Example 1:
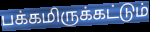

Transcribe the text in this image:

பக்கமிருக்கட்டும்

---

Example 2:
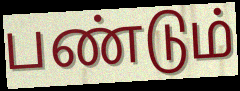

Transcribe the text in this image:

பண்டும்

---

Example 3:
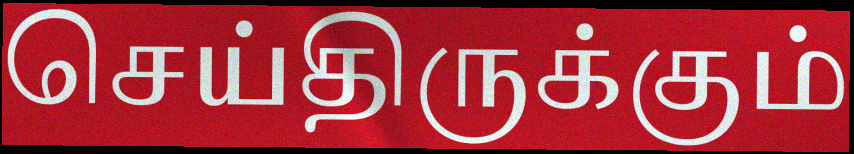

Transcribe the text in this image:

செய்திருக்கும்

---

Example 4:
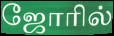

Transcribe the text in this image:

ஜோரில்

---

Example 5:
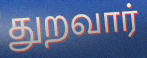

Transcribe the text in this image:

துறவார்